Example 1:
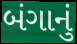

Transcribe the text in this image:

બંગાનું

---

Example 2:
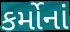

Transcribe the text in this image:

કર્મોનાં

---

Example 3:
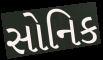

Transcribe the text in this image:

સોનિક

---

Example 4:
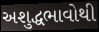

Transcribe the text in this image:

અશુદ્ધભાવોથી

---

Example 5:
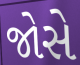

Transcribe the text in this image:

જોસે